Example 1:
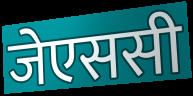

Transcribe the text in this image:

जेएससी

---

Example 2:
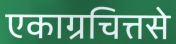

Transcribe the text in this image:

एकाग्रचित्तसे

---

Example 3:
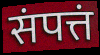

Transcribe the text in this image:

संपत्तं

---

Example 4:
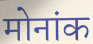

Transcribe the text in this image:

मोनांक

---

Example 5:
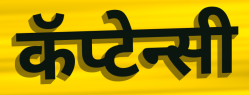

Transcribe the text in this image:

कॅप्टेन्सी